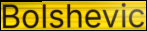
Bolshevic